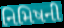
નિમિષની